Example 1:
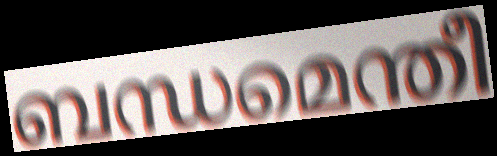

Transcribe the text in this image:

ബന്ധമെന്തീ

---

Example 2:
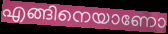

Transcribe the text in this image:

എങ്ങിനെയാണോ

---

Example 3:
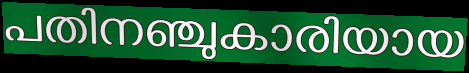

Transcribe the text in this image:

പതിനഞ്ചുകാരിയായ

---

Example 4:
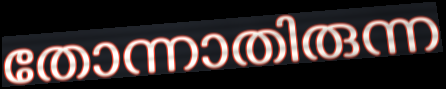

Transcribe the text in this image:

തോന്നാതിരുന്ന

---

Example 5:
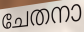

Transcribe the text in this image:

ചേതനാ